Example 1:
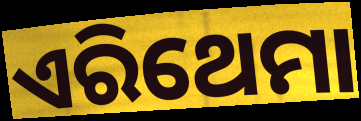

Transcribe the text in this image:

ଏରିଥେମା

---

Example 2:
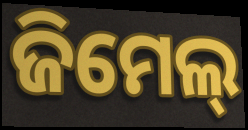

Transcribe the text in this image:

ଜିମେଲ୍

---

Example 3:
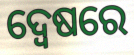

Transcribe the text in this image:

ଦ୍ୱେଷରେ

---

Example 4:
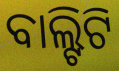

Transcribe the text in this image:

ବାଲ୍ଟିଟି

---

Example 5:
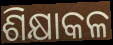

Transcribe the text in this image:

ଶିକ୍ଷାକଳ